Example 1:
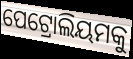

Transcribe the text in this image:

ପେଟ୍ରୋଲିୟମକୁ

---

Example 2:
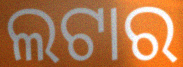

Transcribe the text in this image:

ଲଟାର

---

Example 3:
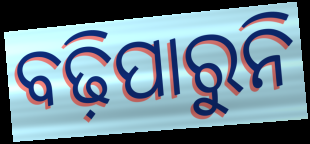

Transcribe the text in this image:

ବଢ଼ିପାରୁନି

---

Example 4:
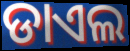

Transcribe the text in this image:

ଡାଏଲ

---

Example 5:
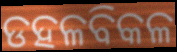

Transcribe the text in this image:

ଡହଳବିକଳ